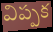
విప్పక